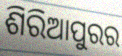
ଶିରିଆପୁରର